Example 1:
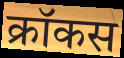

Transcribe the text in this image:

क्रॉकस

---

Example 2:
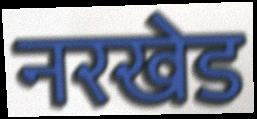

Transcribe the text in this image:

नरखेड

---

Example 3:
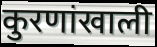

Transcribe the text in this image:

कुरणांखाली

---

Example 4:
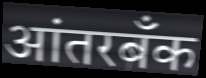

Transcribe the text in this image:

आंतरबँक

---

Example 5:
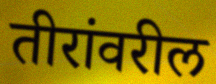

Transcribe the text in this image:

तीरांवरील